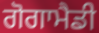
ਗੋਗਾਮੈਡੀ